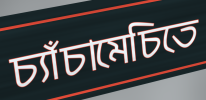
চ্যাঁচামেচিতে